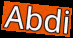
Abdi